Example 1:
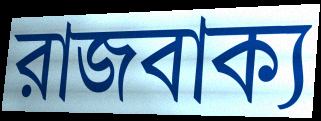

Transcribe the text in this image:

রাজবাক্য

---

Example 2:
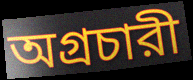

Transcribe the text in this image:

অগ্রচারী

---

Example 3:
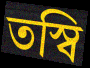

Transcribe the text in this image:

তস্বি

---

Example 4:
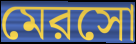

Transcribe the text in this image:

মেরসো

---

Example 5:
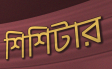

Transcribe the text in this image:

শিশিটার